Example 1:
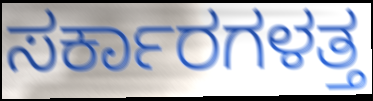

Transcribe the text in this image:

ಸರ್ಕಾರಗಳತ್ತ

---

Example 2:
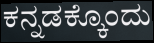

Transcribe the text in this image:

ಕನ್ನಡಕ್ಕೊಂದು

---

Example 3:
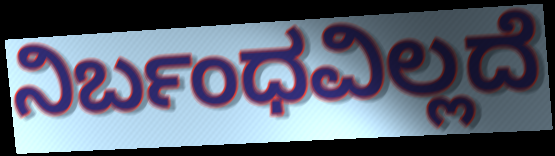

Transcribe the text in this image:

ನಿರ್ಬಂಧವಿಲ್ಲದೆ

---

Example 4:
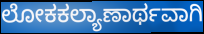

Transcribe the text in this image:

ಲೋಕಕಲ್ಯಾಣಾರ್ಥವಾಗಿ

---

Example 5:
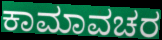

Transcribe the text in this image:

ಕಾಮಾವಚರ